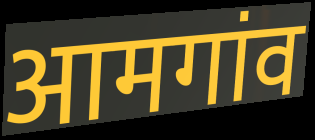
आमगांव